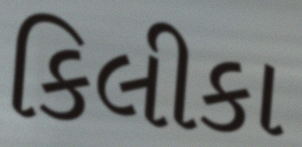
કિલીકા